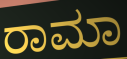
ರಾಮಾ